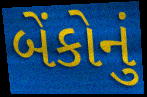
બેંકોનું